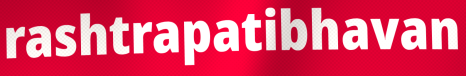
rashtrapatibhavan